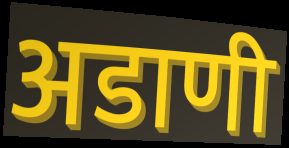
अडाणी